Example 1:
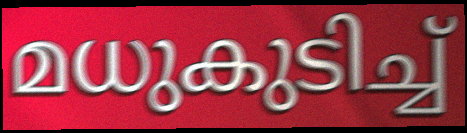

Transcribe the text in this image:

മധുകുടിച്ച്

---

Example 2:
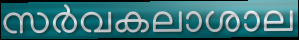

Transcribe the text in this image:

സർവകലാശാല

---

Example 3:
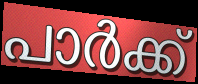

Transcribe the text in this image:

പാർക്ക്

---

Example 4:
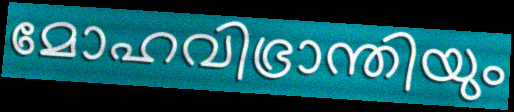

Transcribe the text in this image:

മോഹവിഭ്രാന്തിയും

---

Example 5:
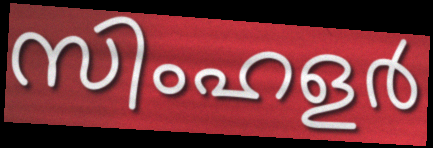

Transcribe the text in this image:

സിംഹളർ